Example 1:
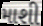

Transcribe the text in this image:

માશી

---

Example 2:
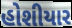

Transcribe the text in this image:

હોશીયાર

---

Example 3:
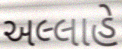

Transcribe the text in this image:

અલ્લાહે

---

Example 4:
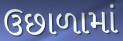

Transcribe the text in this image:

ઉછાળામાં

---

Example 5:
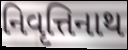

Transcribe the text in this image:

નિવૃત્તિનાથ